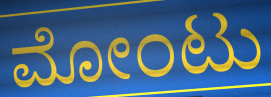
ಮೋಂಟು